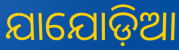
ଯାଯୋଡ଼ିଆ